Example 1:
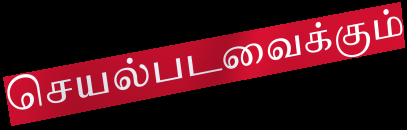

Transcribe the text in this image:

செயல்படவைக்கும்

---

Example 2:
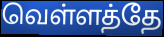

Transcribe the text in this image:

வெள்ளத்தே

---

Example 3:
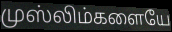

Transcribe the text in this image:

முஸ்லிம்களையே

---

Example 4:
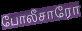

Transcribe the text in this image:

போலீசாரோ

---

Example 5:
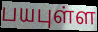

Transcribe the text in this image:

பயபுள்ள